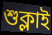
শুক্লাই